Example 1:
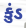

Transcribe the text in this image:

કુંડ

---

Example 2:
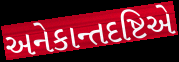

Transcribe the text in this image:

અનેકાન્તદષ્ટિએ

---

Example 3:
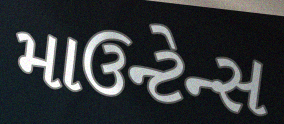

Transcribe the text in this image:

માઉન્ટેન્સ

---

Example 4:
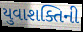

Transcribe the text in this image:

યુવાશક્તિની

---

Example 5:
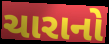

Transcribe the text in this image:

ચારાનો